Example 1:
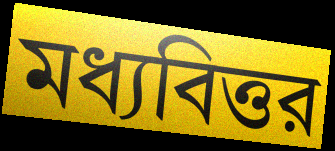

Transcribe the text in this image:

মধ্যবিত্তর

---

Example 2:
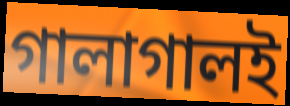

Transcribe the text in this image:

গালাগালই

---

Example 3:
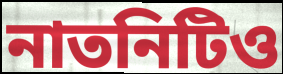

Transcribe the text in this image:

নাতনিটিও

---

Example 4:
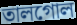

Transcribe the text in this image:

তালগোল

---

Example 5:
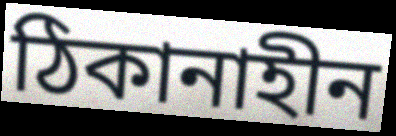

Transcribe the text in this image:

ঠিকানাহীন